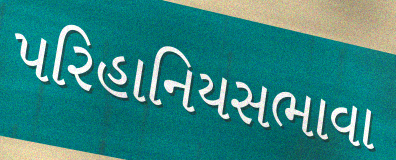
પરિહાનિયસભાવા